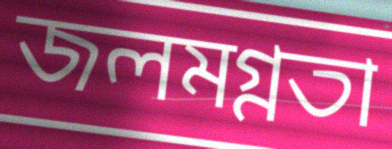
জলমগ্নতা